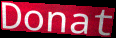
Donat